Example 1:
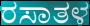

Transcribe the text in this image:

ರಸಾತಳ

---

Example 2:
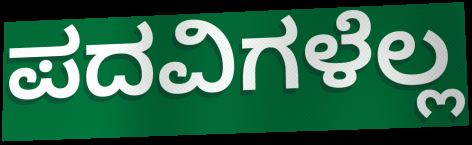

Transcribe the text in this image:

ಪದವಿಗಳೆಲ್ಲ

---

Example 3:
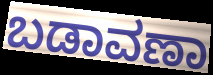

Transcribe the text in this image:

ಬಡಾವಣಾ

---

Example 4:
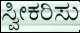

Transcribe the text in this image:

ಸ್ವೀಕರಿಸು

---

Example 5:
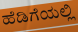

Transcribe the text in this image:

ಹೆಡಿಗೆಯಲ್ಲಿ